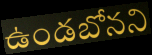
ఉండబోనని